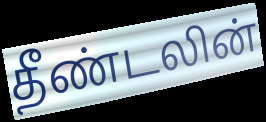
தீண்டலின்